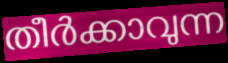
തീർക്കാവുന്ന